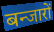
बन्जारों